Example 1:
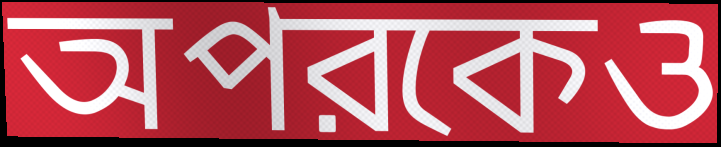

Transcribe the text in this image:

অপরকেও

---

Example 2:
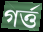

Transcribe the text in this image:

গর্ত্ত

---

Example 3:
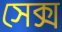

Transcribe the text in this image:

সেক্স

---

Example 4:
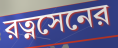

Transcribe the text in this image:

রত্নসেনের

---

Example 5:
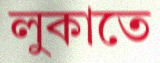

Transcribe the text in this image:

লুকাতে